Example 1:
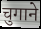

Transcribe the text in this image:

चुगाने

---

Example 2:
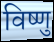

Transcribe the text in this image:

विष्णु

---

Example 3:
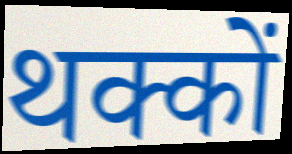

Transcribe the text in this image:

थक्कों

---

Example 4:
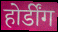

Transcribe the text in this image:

होर्डींग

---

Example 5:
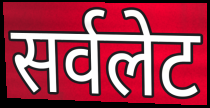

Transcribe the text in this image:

सर्वलेट